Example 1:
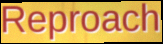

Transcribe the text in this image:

Reproach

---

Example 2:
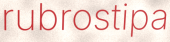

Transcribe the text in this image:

rubrostipa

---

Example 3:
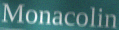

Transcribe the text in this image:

Monacolin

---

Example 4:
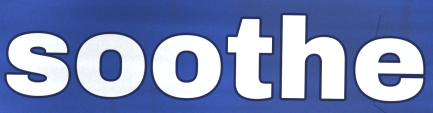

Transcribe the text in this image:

soothe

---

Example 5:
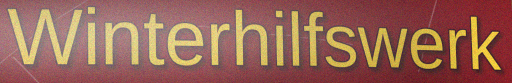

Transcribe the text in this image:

Winterhilfswerk